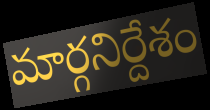
మార్గనిర్దేశం